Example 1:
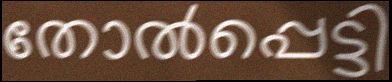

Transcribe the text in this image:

തോൽപ്പെട്ടി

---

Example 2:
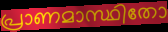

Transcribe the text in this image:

പ്രാണമാസ്ഥിതോ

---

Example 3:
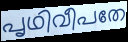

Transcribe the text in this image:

പൃഥിവീപതേ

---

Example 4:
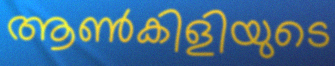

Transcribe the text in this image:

ആൺകിളിയുടെ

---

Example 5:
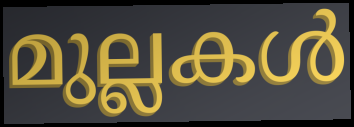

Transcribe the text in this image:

മുല്ലകൾ